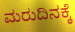
ಮರುದಿನಕ್ಕೆ